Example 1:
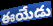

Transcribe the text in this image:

ఈయేడు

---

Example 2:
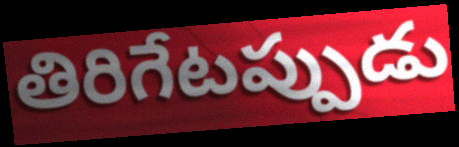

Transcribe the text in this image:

తిరిగేటప్పుడు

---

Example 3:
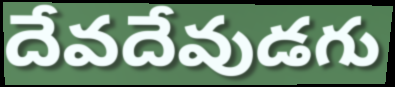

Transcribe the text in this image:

దేవదేవుడగు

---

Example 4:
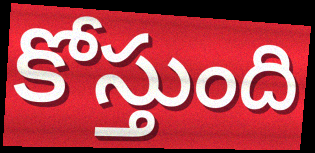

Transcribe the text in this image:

కోస్తుంది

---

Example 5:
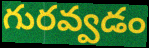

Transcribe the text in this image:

గురవ్వడం